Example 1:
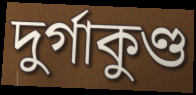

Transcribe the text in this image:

দুর্গাকুণ্ড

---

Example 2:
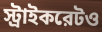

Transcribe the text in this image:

স্ট্রাইকরেটও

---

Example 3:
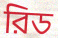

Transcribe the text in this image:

রিড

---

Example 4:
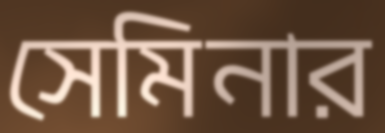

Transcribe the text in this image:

সেমিনার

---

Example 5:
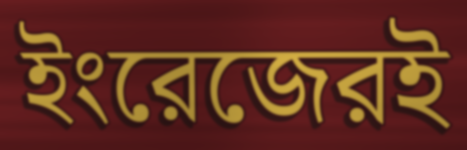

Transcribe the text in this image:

ইংরেজেরই